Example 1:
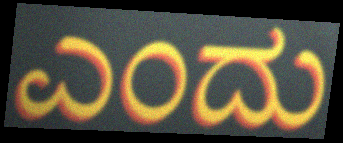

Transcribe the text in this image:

ಎಂದು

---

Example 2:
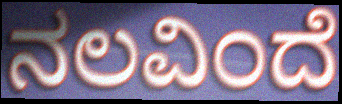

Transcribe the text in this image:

ನಲವಿಂದೆ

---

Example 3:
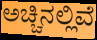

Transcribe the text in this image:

ಅಚ್ಚಿನಲ್ಲಿವೆ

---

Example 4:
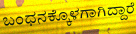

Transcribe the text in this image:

ಬಂಧನಕ್ಕೊಳಗಾಗಿದ್ದಾರೆ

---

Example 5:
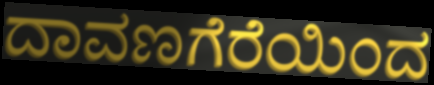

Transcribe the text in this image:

ದಾವಣಗೆರೆಯಿಂದ